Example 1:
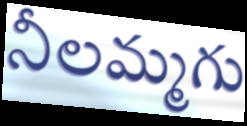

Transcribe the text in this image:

నీలమ్మగు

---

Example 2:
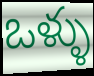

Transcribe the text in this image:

ఒళ్ళు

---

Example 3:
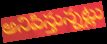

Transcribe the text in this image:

అనిపిస్తున్నట్లు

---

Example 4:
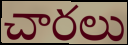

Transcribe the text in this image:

చారలు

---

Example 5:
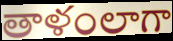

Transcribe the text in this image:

తాళంలాగా